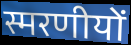
स्मरणीयों